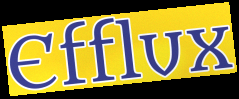
Efflux